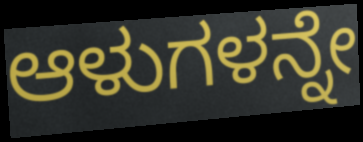
ಆಳುಗಳನ್ನೇ